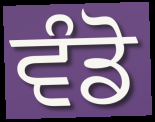
ਵੰਡੋ